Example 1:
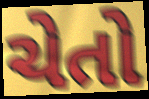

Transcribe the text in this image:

ચેતો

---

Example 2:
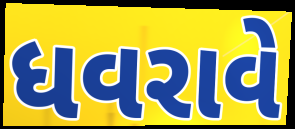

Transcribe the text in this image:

ધવરાવે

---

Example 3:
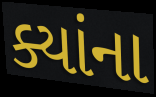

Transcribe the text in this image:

ક્યાંના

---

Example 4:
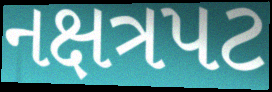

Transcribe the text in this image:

નક્ષત્રપટ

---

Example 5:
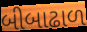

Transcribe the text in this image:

બીબાઢાળ